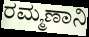
ರಮ್ಮಣಾನಿ